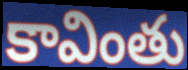
కావింతు